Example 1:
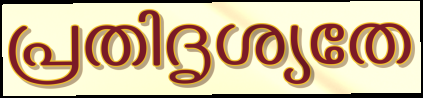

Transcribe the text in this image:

പ്രതിദൃശ്യതേ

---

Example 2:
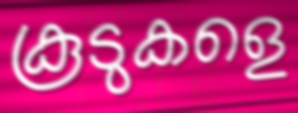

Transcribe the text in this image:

കൂടുകളെ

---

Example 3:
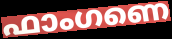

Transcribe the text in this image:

ഫാംഗണെ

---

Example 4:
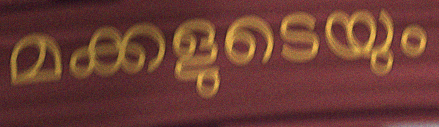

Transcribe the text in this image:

മക്കളുടെയും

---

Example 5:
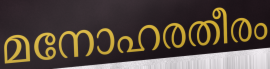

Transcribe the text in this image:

മനോഹരതീരം